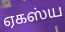
ஏகஸ்ய